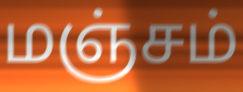
மஞ்சம்